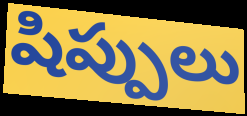
షిప్పులు